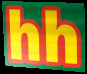
hh